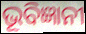
ଭୂବିଜ୍ଞାନୀ